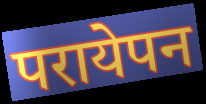
परायेपन